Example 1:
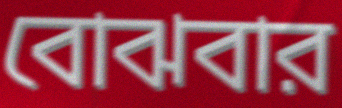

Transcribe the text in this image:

বোঝবার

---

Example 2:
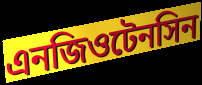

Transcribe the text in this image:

এনজিওটেনসিন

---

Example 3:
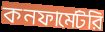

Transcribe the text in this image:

কনফার্মেটরি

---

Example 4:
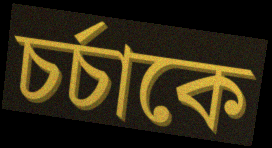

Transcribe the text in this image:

চর্চাকে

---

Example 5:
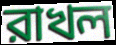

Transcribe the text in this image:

রাখল